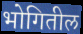
भोगितील